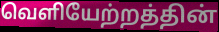
வெளியேற்றத்தின்